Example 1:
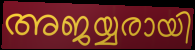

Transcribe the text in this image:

അജയ്യരായി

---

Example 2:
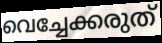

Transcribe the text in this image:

വെച്ചേക്കരുത്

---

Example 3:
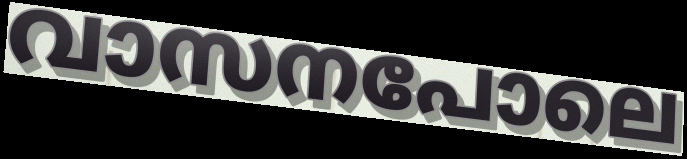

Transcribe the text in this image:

വാസനപോലെ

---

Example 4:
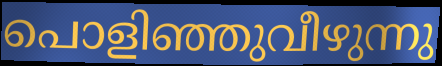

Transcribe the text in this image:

പൊളിഞ്ഞുവീഴുന്നു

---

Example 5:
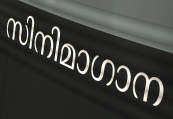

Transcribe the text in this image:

സിനിമാഗാന